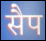
सैप